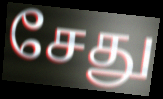
சேது